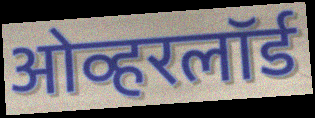
ओव्हरलॉर्ड